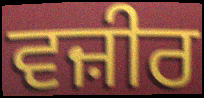
ਵਜ਼ੀਰ